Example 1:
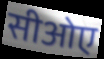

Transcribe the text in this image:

सीओए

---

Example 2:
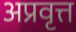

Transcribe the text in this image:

अप्रवृत्त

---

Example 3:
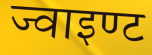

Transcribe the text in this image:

ज्वाइण्ट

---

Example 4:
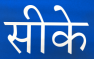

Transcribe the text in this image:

सीके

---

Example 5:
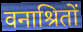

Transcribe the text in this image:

वनाश्रितों